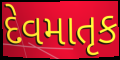
દેવમાતૃક